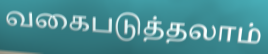
வகைபடுத்தலாம்